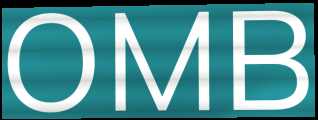
OMB